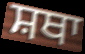
ਸ਼ਥਾ